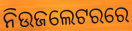
ନିଉଜଲେଟରରେ